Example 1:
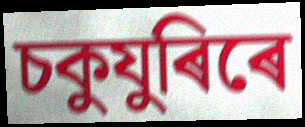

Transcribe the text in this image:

চকুযুৰিৰে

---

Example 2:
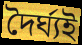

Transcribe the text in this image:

দৈৰ্ঘ্যই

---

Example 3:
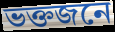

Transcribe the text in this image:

ভক্তজনে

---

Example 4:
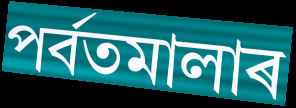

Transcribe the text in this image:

পৰ্বতমালাৰ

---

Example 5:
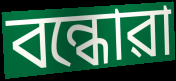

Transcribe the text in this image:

বন্ধোৱা